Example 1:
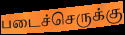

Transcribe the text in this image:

படைச்செருக்கு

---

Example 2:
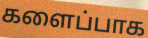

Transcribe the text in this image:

களைப்பாக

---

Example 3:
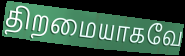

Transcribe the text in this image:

திறமையாகவே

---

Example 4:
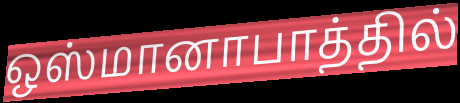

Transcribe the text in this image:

ஒஸ்மானாபாத்தில்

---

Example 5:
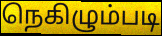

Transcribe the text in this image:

நெகிழும்படி